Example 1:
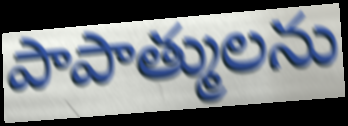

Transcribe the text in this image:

పాపాత్ములను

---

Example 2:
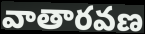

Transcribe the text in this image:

వాతారవణ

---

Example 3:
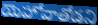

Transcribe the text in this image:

యెహోవాతోడని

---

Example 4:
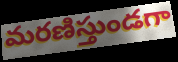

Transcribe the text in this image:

మరణిస్తుండగా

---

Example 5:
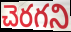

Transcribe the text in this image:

చెరగని